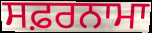
ਸਫ਼ਰਨਾਮਾ